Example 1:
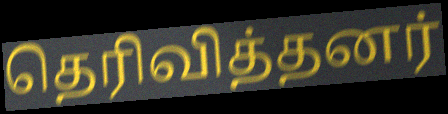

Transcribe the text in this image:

தெரிவித்தனர்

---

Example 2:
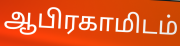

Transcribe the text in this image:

ஆபிரகாமிடம்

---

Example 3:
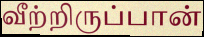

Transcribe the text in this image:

வீற்றிருப்பான்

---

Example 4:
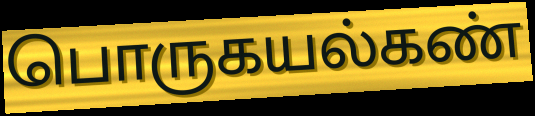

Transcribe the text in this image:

பொருகயல்கண்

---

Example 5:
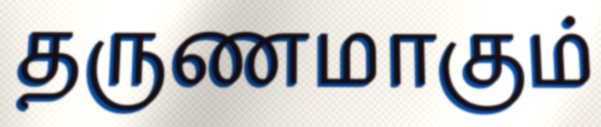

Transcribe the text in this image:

தருணமாகும்